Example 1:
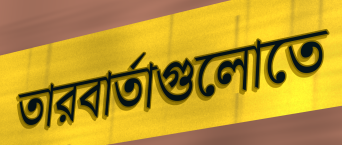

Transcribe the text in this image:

তারবার্তাগুলোতে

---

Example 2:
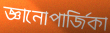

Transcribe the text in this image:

জ্ঞানোপার্জিকা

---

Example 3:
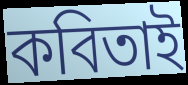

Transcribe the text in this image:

কবিতাই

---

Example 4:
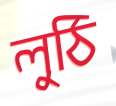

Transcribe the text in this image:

লুঠি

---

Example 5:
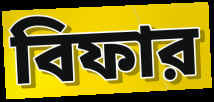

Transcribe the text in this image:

বিফার